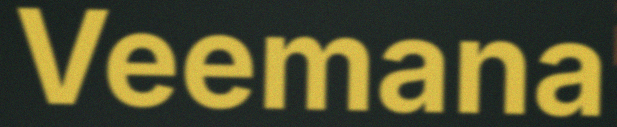
Veemana